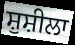
ਸ਼ੁਸ਼ੀਲਾ